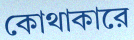
কোথাকারে